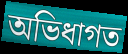
অভিধাগত